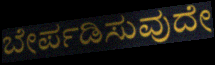
ಬೇರ್ಪಡಿಸುವುದೇ